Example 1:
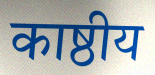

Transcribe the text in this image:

काष्ठीय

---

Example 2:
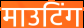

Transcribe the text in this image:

माउटिंग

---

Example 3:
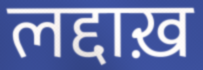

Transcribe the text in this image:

लद्दाख़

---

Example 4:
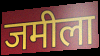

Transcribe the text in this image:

जमीला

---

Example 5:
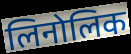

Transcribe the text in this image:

लिनोलिक